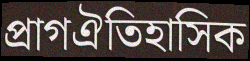
প্ৰাগঐতিহাসিক